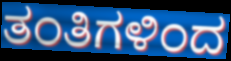
ತಂತಿಗಳಿಂದ